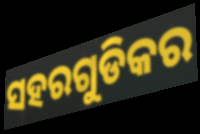
ସହରଗୁଡିକର